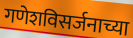
गणेशविसर्जनाच्या